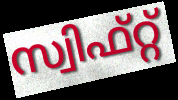
സ്വിഫ്റ്റ്